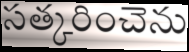
సత్కరించెను